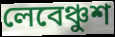
লেবেঞ্চুশ